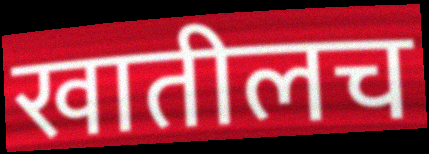
खातीलच